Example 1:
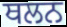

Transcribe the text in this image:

ਥਲਨ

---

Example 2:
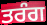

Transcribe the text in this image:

ਤਰੰਗ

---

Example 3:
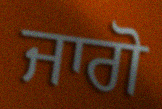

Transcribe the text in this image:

ਜਾਗੋ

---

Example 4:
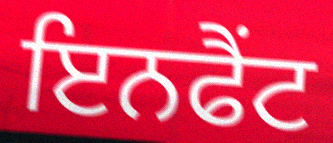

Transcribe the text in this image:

ਇਨਫੈਂਟ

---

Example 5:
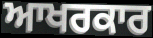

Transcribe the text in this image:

ਆਖਰਕਾਰ